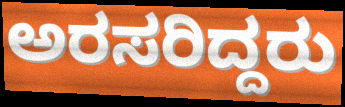
ಅರಸರಿದ್ದರು